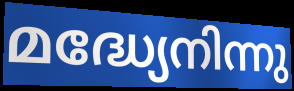
മദ്ധ്യേനിന്നു